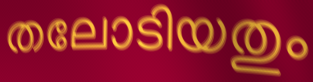
തലോടിയതും